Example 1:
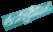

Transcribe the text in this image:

తున్నదేమిటి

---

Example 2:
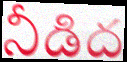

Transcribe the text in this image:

నీడిద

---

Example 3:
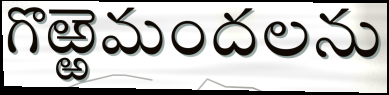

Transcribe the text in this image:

గొఱ్ఱెమందలను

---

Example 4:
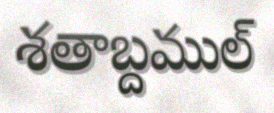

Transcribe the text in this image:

శతాబ్దముల్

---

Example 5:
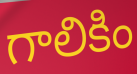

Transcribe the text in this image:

గాలికిం